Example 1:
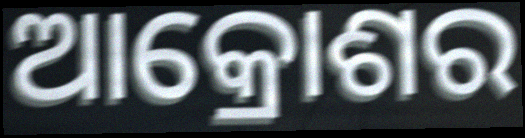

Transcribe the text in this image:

ଆକ୍ରୋଶର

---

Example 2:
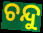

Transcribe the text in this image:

ଚନ୍ଦୁ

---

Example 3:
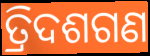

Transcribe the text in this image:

ତ୍ରିଦଶଗଣ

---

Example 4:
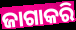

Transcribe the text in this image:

ଜାଗାକରି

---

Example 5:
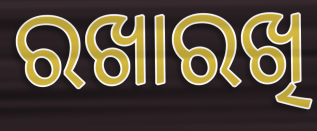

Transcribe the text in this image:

ରଖାରଖି